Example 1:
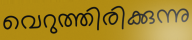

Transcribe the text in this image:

വെറുത്തിരിക്കുന്നു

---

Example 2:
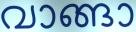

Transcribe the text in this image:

വാങ്ങാ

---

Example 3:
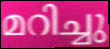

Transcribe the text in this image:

മറിച്ചു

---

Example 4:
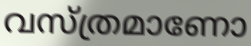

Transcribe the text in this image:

വസ്ത്രമാണോ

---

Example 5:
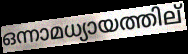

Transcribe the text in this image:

ഒന്നാമധ്യായത്തില്